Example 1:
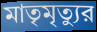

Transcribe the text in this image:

মাতৃমৃত্যুর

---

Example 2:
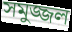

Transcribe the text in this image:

সমুজ্জল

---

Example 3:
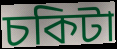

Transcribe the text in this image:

চকিটা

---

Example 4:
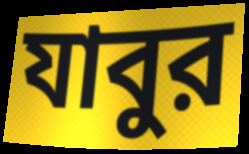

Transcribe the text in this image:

যাবুর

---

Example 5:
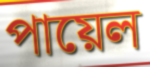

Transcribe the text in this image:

পায়েল